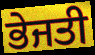
ਭੇਜਤੀ